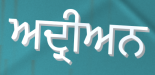
ਅਦ੍ਰੀਅਨ